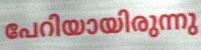
പേറിയായിരുന്നു